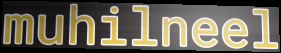
muhilneel